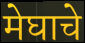
मेघाचे